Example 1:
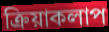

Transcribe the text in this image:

ক্রিয়াকলাপ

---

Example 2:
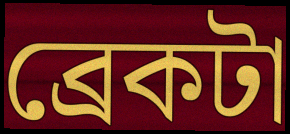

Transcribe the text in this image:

ব্রেকটা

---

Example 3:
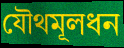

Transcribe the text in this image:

যৌথমূলধন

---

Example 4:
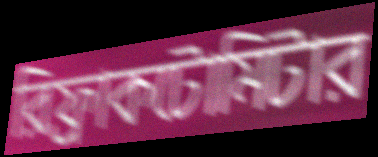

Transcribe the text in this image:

রিফ্রাকটোমিটার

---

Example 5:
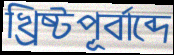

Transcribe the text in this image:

খ্রিষ্টপূর্বাব্দে